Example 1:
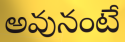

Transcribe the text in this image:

అవునంటే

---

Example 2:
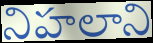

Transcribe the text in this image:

నిహలాని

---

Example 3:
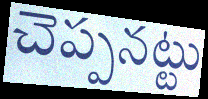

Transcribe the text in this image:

చెప్పనట్టు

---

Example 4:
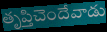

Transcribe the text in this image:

తృప్తిచెందేవాడు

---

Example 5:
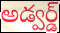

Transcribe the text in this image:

అడ్వర్డ్